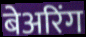
बेअरिंग